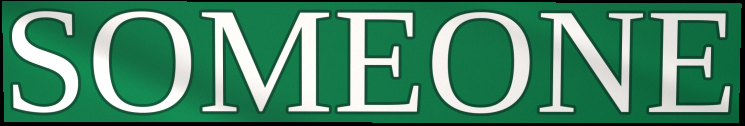
SOMEONE